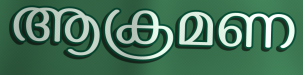
ആക്രമണ